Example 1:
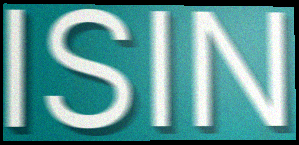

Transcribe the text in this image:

ISIN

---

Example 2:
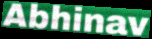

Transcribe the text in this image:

Abhinav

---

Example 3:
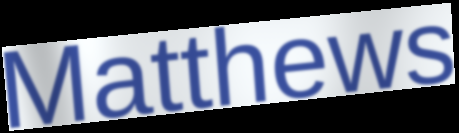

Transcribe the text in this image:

Matthews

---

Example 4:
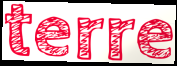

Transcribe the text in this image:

terre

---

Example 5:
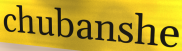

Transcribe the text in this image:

chubanshe